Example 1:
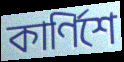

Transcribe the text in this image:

কার্ণিশে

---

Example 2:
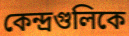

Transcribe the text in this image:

কেন্দ্রগুলিকে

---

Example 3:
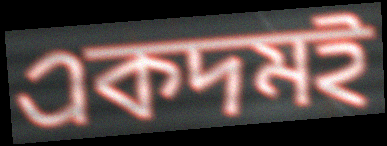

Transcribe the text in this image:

একদমই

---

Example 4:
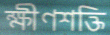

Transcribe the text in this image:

ক্ষীণশক্তি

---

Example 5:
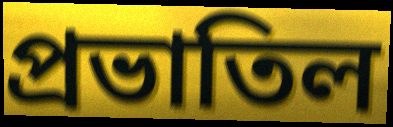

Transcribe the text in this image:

প্রভাতিল